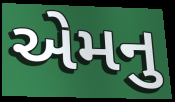
એમનુ